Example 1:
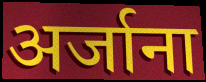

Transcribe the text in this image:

अर्जाना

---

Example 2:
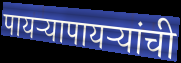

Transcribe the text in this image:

पायऱ्यापायऱ्यांची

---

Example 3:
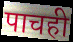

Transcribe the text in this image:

पाचही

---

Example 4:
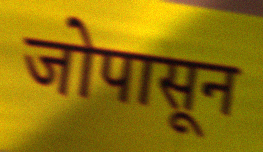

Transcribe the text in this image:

जोपासून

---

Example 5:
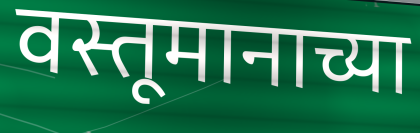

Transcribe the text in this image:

वस्तूमानाच्या